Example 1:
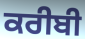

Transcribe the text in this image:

ਕਰੀਬੀ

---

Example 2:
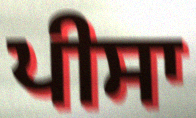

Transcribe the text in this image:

ਪੀਸਾ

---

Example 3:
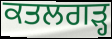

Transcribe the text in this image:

ਕਤਲਗੜ੍ਹ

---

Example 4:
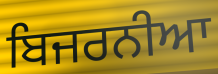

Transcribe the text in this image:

ਬਿਜਰਨੀਆ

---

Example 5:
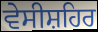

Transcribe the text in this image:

ਵੇਸੀਸ਼ਹਿਰ